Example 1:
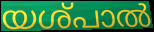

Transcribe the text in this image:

യശ്പാൽ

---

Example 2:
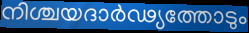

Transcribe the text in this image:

നിശ്ചയദാർഢ്യത്തോടും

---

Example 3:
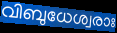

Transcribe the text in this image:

വിബുധേശ്വരാഃ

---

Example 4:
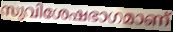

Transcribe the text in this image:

സുവിശേഷഭാഗമാണ്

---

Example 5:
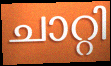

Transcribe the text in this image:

ചാറ്റി